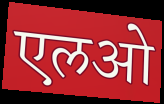
एलओ